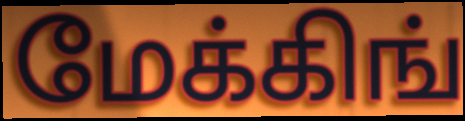
மேக்கிங்